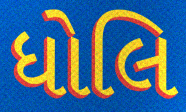
ધોલિ